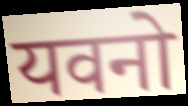
यवनो